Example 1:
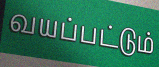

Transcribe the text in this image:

வயப்பட்டும்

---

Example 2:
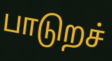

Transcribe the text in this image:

பாடுறச்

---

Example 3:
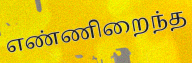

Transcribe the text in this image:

எண்ணிறைந்த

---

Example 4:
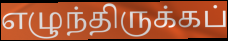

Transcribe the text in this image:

எழுந்திருக்கப்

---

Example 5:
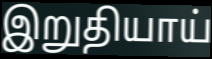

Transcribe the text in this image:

இறுதியாய்